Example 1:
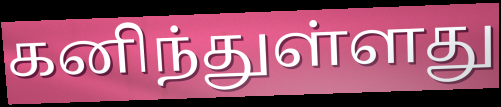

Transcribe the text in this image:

கனிந்துள்ளது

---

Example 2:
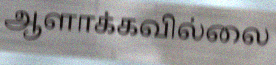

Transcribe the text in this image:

ஆளாக்கவில்லை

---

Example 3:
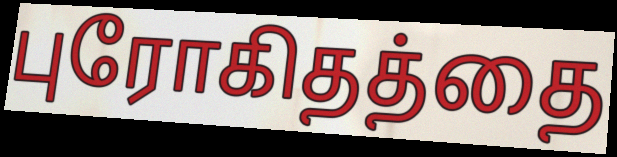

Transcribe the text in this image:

புரோகிதத்தை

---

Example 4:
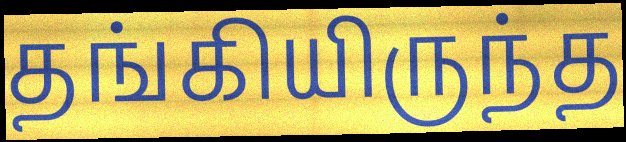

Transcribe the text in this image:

தங்கியிருந்த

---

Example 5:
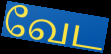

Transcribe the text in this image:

வேட